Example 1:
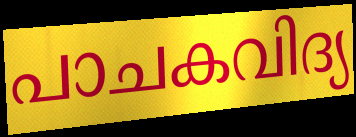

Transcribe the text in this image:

പാചകവിദ്യ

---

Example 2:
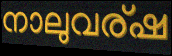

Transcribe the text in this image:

നാലുവര്ഷ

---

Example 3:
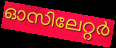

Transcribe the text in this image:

ഓസിലേറ്റർ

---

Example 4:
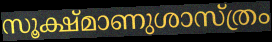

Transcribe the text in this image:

സൂക്ഷ്മാണുശാസ്ത്രം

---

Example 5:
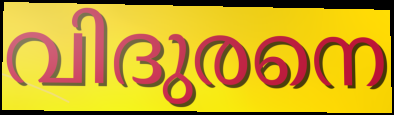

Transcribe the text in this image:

വിദുരനെ